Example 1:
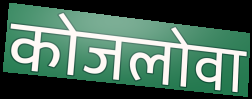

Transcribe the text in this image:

कोजलोवा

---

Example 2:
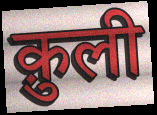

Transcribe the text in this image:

क़ुली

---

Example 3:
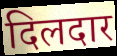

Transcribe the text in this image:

दिलदार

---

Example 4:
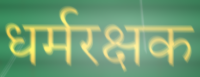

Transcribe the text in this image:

धर्मरक्षक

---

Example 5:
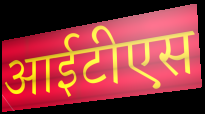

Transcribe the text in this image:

आईटीएस